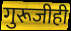
गुरूजीही